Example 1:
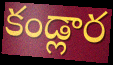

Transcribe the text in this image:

కండ్లార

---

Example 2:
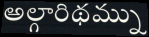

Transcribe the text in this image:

అల్గారిథమ్ను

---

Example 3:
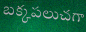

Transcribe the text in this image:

బక్కపలుచగా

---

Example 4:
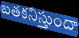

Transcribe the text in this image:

బతకనిస్తుందా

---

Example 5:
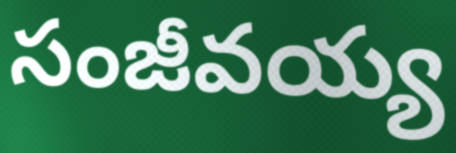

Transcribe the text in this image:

సంజీవయ్య